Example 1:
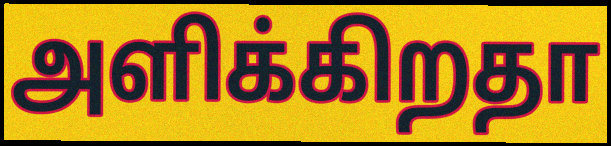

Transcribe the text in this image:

அளிக்கிறதா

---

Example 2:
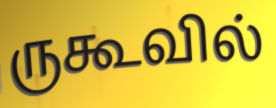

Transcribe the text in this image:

ருகூவில்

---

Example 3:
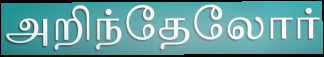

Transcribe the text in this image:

அறிந்தேலோர்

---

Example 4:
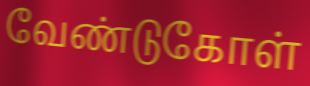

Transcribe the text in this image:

வேண்டுகோள்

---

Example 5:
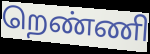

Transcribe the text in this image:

றெண்ணி